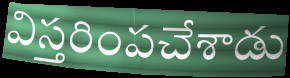
విస్తరింపచేశాడు